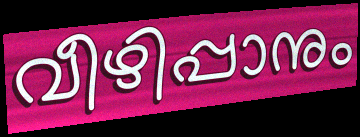
വീഴിപ്പാനും